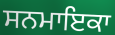
ਸਨਮਾਇਕਾ